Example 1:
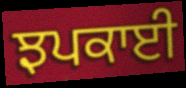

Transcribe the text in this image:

ਝਪਕਾਈ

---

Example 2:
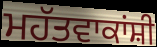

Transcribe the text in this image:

ਮਹੱਤਵਾਕਾਂਸ਼ੀ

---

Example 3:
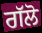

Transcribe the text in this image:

ਗੱਲੋ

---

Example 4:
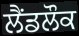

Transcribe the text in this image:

ਲੈਂਡਲੌਕ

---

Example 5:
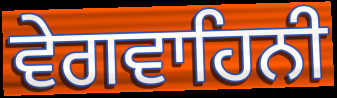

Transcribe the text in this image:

ਵੇਗਵਾਹਿਨੀ